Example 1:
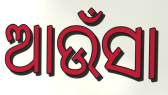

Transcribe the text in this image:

ଆଉଁସା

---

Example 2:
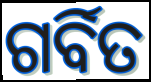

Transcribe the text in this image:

ଗର୍ବିତ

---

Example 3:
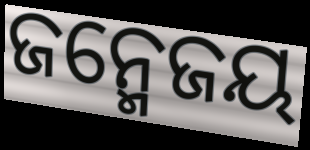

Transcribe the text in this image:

ଜନ୍ମେଜୟ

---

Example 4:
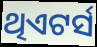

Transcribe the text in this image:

ଥିଏଟର୍ସ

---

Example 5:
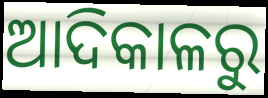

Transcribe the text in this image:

ଆଦିକାଳରୁ